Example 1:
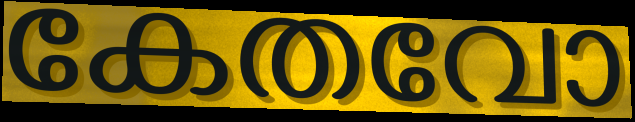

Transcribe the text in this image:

കേതവോ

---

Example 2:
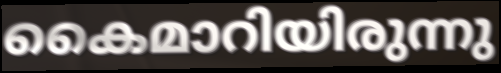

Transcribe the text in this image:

കൈമാറിയിരുന്നു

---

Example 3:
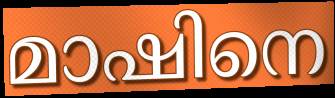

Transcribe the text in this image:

മാഷിനെ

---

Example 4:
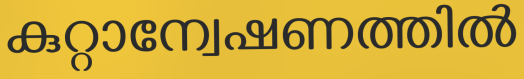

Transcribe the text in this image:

കുറ്റാന്വേഷണത്തിൽ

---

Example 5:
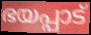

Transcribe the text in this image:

ഭയപ്പാട്